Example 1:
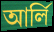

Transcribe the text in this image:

আৰ্লি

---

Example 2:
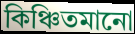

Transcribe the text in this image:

কিঞ্চিতমানো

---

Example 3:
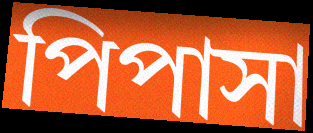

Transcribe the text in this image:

পিপাসা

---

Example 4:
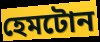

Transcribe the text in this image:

হেমটোন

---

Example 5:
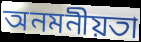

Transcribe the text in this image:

অনমনীয়তা